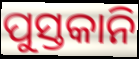
ପୁସ୍ତକାନି